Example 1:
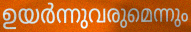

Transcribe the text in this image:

ഉയർന്നുവരുമെന്നും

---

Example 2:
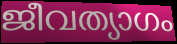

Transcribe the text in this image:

ജീവത്യാഗം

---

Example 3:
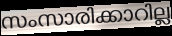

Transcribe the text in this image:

സംസാരിക്കാറില്ല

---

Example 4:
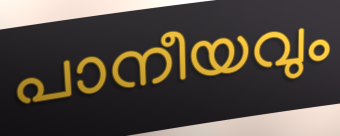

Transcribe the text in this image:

പാനീയവും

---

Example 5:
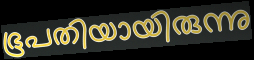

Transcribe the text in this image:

ഭൂപതിയായിരുന്നു